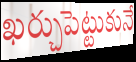
ఖర్చుపెట్టుకునే